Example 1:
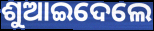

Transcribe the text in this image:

ଶୁଆଇଦେଲେ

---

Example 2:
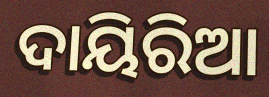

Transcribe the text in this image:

ଦାୟିରିଆ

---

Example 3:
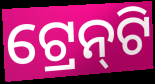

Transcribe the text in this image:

ଟ୍ରେନ୍‌ଟି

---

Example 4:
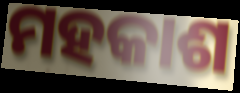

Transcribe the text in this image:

ମହକାଶ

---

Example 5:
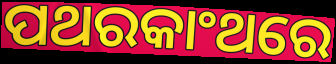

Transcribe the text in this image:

ପଥରକାଂଥରେ